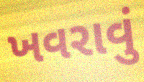
ખવરાવું